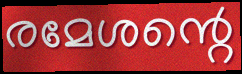
രമേശന്റെ